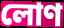
লোণ